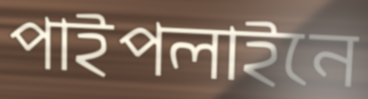
পাইপলাইনে